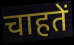
चाहतें